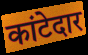
कांटेदार